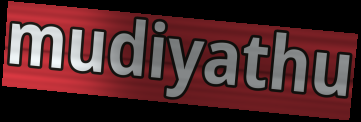
mudiyathu